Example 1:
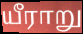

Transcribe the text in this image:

யீராறு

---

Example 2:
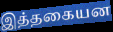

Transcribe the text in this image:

இத்தகையன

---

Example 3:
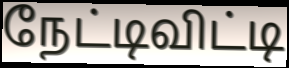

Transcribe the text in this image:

நேட்டிவிட்டி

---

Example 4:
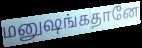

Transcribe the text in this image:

மனுஷங்கதானே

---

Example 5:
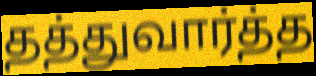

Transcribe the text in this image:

தத்துவார்த்த